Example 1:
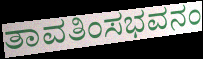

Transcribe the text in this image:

ತಾವತಿಂಸಭವನಂ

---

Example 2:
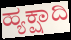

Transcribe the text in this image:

ಹ್ಯಕ್ಷಾದಿ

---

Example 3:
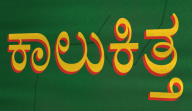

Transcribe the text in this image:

ಕಾಲುಕಿತ್ತ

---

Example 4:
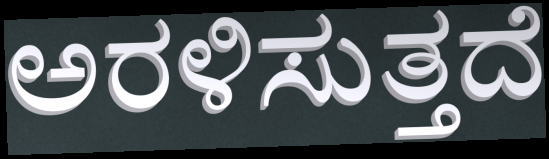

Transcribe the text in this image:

ಅರಳಿಸುತ್ತದೆ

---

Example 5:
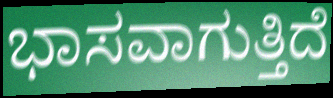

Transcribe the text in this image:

ಭಾಸವಾಗುತ್ತಿದೆ